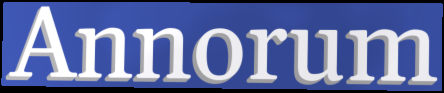
Annorum